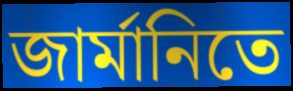
জার্মানিতে